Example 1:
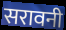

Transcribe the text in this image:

सरावनी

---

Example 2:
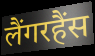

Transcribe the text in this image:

लैंगरहैंस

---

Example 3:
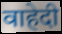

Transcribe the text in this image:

वाहेदी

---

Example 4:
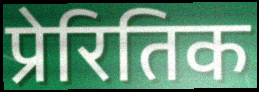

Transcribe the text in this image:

प्रेरितिक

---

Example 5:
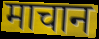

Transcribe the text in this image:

माचान